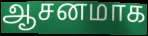
ஆசனமாக